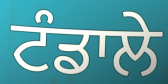
ਟੰਡਾਲੇ